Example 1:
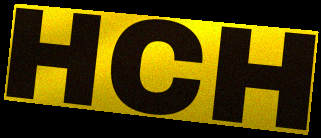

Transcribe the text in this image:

HCH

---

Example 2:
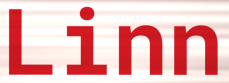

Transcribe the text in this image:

Linn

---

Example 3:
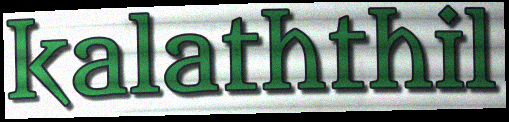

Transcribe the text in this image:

kalaththil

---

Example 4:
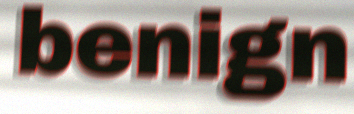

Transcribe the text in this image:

benign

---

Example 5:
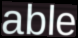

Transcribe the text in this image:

able